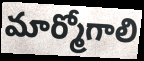
మార్మోగాలి